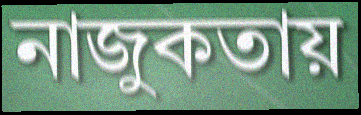
নাজুকতায়